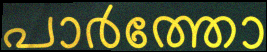
പാർത്തോ